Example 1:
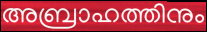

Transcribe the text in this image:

അബ്രാഹത്തിനും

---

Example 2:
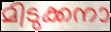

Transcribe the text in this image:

മിടുക്കനാ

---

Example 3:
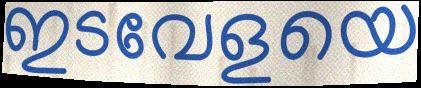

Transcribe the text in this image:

ഇടവേളയെ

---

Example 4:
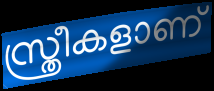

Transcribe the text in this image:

സ്ത്രീകളാണ്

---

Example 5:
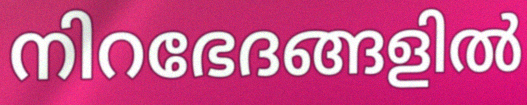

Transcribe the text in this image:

നിറഭേദങ്ങളിൽ